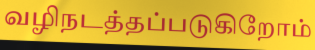
வழிநடத்தப்படுகிறோம்